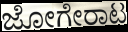
ಜೋಗೇರಾಟ